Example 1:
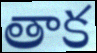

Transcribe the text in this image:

తాక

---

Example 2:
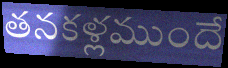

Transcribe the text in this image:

తనకళ్లముందే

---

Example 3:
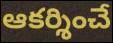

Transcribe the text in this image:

ఆకర్శించే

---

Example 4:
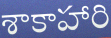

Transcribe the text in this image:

శాకాహారి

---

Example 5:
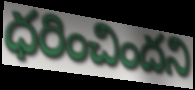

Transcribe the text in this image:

ధరించిందని